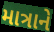
માત્રાને